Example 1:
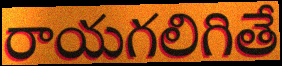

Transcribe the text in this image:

రాయగలిగితే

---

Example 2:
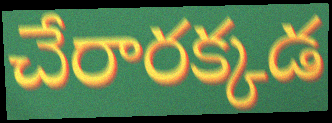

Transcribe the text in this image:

చేరారక్కడ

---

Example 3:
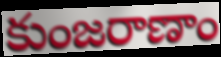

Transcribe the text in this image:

కుంజరాణాం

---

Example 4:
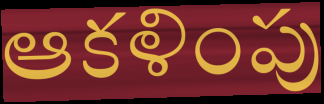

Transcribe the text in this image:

ఆకళింపు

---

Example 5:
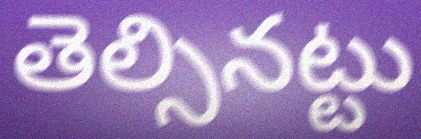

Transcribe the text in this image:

తెల్సినట్టు